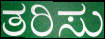
ತರಿಸು